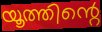
യൂത്തിന്റെ